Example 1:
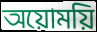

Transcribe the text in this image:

অয়োময়ি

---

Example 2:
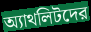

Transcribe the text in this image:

অ্যাথলিটদের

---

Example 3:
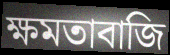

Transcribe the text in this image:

ক্ষমতাবাজি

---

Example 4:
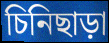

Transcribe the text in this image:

চিনিছাড়া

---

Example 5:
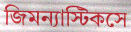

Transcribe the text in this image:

জিমন্যাস্টিকসে